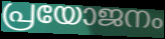
പ്രയോജനം